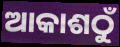
ଆକାଶଠୁଁ